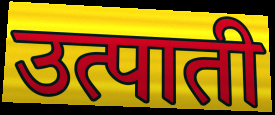
उत्पाती